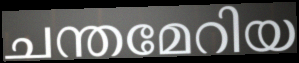
ചന്തമേറിയ